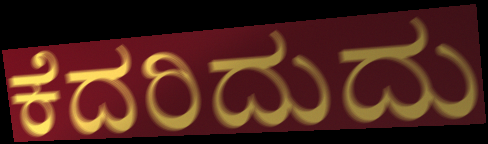
ಕೆದರಿದುದು